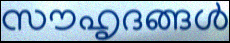
സൗഹൃദങ്ങൾ